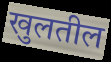
खुलतील